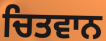
ਚਿਤਵਾਨ